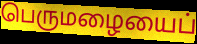
பெருமழையைப்